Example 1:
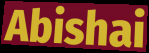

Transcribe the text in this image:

Abishai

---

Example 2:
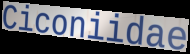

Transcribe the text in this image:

Ciconiidae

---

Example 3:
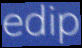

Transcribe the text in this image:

edip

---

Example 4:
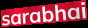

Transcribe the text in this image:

sarabhai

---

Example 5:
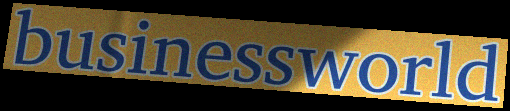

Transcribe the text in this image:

businessworld